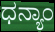
ಧನ್ಯಾಂ